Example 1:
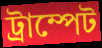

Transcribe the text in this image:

ট্রাম্পেট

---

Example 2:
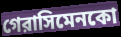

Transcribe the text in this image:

গেরাসিমেনকো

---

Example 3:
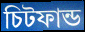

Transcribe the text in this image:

চিটফান্ড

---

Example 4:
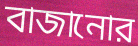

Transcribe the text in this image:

বাজানোর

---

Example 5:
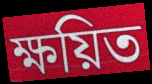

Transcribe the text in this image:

ক্ষয়িত